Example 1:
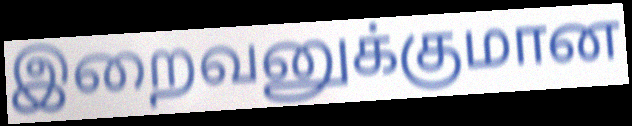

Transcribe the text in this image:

இறைவனுக்குமான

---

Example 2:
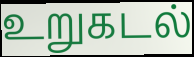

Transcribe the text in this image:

உறுகடல்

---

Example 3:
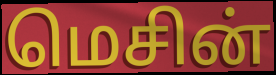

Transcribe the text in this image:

மெசின்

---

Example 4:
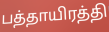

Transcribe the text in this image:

பத்தாயிரத்தி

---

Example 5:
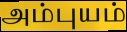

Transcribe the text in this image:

அம்புயம்